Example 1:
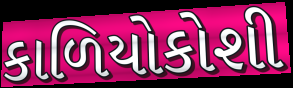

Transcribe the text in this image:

કાળિયોકોશી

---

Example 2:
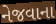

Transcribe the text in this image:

નેજવાના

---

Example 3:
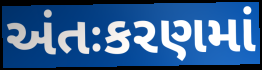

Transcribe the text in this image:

અંતઃકરણમાં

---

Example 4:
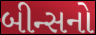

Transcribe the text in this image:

બીન્સનો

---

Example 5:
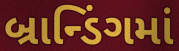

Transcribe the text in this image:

બ્રાન્ડિંગમાં